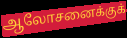
ஆலோசனைக்குக்